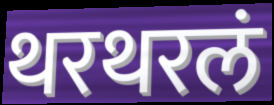
थरथरलं